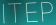
ITEP